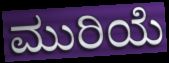
ಮುರಿಯೆ